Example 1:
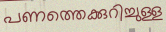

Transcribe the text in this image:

പണത്തെക്കുറിച്ചുള്ള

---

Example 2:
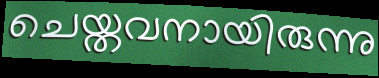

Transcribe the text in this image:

ചെയ്തവനായിരുന്നു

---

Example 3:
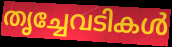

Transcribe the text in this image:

തൃച്ചേവടികൾ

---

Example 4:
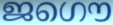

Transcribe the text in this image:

ജഗൌ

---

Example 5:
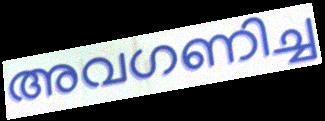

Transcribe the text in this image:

അവഗണിച്ച